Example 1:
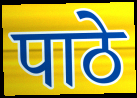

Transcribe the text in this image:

पाठे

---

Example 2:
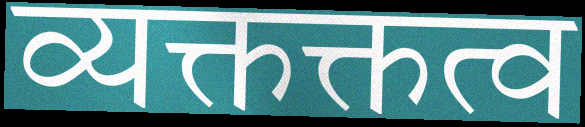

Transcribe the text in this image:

व्यक्तक्तत्व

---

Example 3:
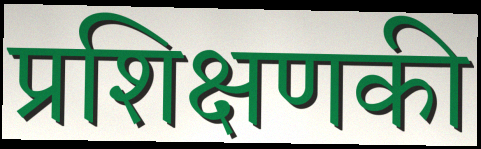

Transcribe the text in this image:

प्रशिक्षणकी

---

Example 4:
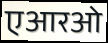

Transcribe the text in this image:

एआरओ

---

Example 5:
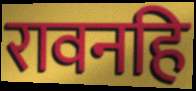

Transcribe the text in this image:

रावनहि